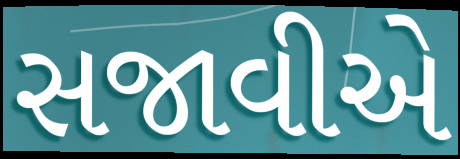
સજાવીએ